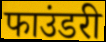
फाउंडरी